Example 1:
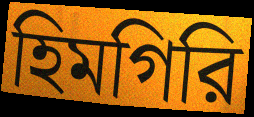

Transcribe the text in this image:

হিমগিরি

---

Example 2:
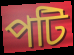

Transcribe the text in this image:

পটি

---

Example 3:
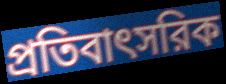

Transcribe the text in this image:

প্রতিবাৎসরিক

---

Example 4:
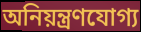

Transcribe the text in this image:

অনিয়ন্ত্রণযোগ্য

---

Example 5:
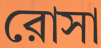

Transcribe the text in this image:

রোসা